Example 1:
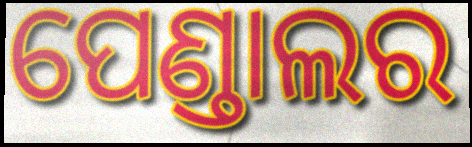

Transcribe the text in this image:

ପେଣ୍ଡାଲର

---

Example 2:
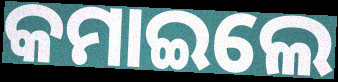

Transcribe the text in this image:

କମାଇଲେ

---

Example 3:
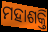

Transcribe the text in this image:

ମହାଶକ୍ତି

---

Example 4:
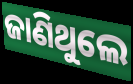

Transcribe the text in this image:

ଜାଣିଥୁଲେ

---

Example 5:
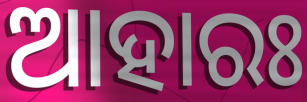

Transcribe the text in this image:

ଆହାରଃ